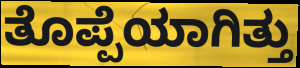
ತೊಪ್ಪೆಯಾಗಿತ್ತು